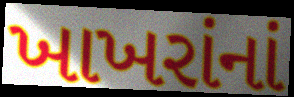
ખાખરાંનાં